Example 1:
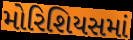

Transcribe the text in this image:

મોરિશિયસમાં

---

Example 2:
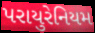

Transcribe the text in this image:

પરાયુરેનિયમ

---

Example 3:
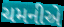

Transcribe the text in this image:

ચમનીએ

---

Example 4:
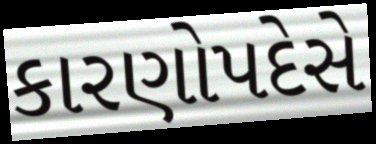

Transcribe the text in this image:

કારણોપદેસે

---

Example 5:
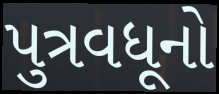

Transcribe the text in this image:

પુત્રવધૂનો